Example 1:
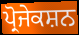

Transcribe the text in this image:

ਪ੍ਰੋਜੇਕਸ਼ਨ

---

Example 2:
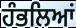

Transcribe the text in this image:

ਹੰਭਲਿਆਂ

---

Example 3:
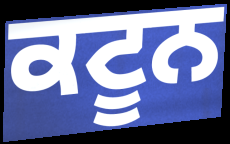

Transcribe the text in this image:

ਕਟੂਨ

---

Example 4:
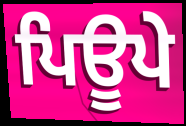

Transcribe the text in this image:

ਪਿਊਪੇ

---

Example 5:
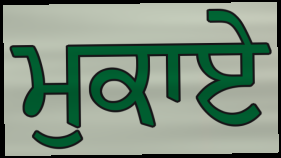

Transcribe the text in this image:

ਮੁਕਾਏ